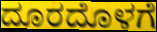
ದೂರದೊಳಗೆ